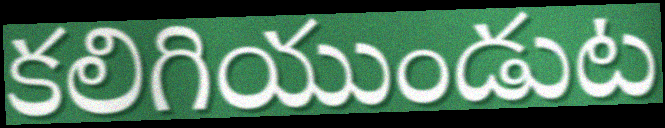
కలిగియుండుట